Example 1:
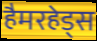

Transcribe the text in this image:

हैमरहेड्स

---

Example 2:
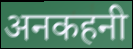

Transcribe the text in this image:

अनकहनी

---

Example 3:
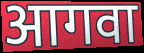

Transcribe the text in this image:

आगवा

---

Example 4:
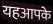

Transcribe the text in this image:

यहआपके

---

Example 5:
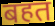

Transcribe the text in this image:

बहत